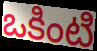
ఒకింటి